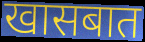
खासबात